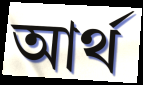
আৰ্থ